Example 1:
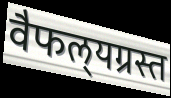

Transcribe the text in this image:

वैफल्यग्रस्त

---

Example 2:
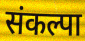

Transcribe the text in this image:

संकल्पा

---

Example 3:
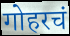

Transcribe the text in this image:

गोहरचं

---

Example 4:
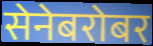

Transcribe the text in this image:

सेनेबरोबर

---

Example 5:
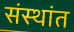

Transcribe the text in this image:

संस्थांत